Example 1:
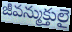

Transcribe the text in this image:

జీవన్ముక్తులై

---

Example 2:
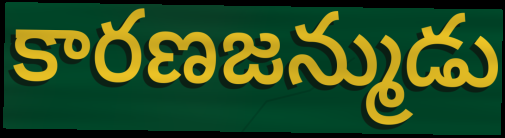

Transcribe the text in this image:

కారణజన్ముడు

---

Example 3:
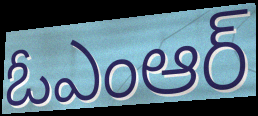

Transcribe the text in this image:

ఓఎంఆర్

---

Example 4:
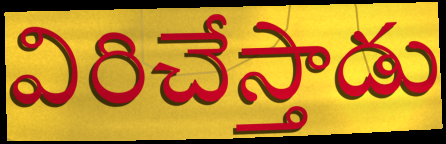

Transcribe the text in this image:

విరిచేస్తాడు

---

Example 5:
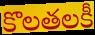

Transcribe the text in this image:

కొలతలకీ